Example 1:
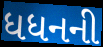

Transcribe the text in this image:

ધધનની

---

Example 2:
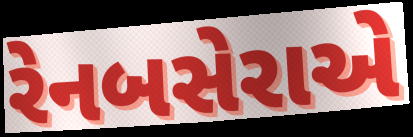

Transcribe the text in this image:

રેનબસેરાએ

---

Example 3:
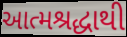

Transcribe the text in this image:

આત્મશ્રદ્ધાથી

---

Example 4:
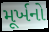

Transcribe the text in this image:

મૂર્ખનો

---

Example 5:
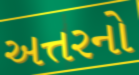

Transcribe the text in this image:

અત્તરનો